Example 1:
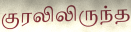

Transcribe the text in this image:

குரலிலிருந்த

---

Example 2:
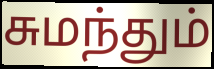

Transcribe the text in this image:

சுமந்தும்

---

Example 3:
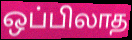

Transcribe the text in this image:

ஒப்பிலாத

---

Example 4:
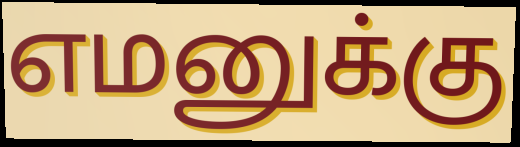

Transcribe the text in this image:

எமனுக்கு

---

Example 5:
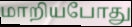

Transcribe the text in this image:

மாறியபோது